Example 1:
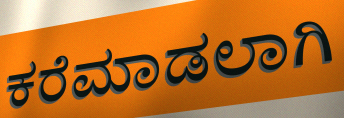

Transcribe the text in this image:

ಕರೆಮಾಡಲಾಗಿ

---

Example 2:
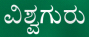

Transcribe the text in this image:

ವಿಶ್ವಗುರು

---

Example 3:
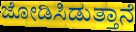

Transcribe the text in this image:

ಜೋಡಿಸಿಡುತ್ತಾನೆ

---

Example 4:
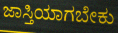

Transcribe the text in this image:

ಜಾಸ್ತಿಯಾಗಬೇಕು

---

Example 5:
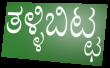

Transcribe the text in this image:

ತಳ್ಳಿಬಿಟ್ಟ